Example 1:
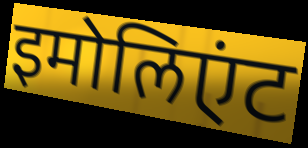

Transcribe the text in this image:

इमोलिएंट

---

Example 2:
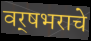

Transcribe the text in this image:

वर्षभराचे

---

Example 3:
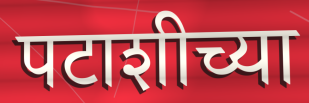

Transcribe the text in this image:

पटाशीच्या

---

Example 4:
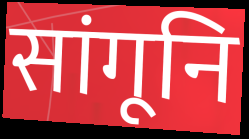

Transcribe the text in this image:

सांगूनि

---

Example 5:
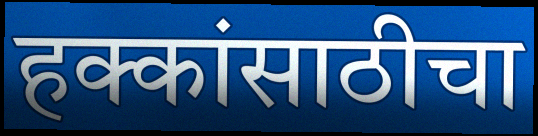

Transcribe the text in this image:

हक्कांसाठीचा